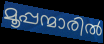
മൂപ്പന്മാരിൽ